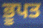
ਭੂਪਤ